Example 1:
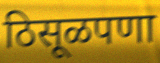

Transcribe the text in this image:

ठिसूळपणा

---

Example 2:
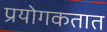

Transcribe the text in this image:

प्रयोगकतात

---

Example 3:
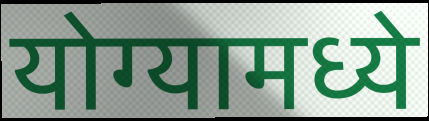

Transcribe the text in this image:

योग्यामध्ये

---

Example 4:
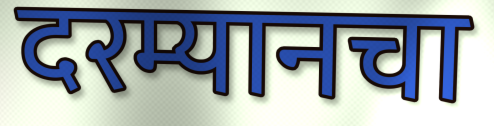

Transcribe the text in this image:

दरम्यानचा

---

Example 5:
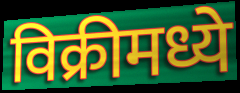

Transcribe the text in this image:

विक्रीमध्ये